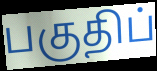
பகுதிப்